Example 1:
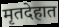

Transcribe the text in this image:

मृतदेहात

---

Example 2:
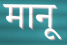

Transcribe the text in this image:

मानू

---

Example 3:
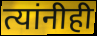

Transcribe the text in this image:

त्यांनीही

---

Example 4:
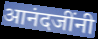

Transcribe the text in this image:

आनंदजींनी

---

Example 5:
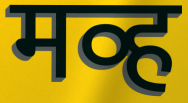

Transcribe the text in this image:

मव्ह